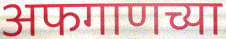
अफगाणच्या